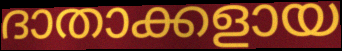
ദാതാക്കളായ